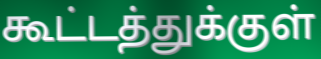
கூட்டத்துக்குள்